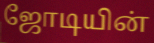
ஜோடியின்